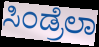
ಸಿಂಡ್ರೆಲಾ